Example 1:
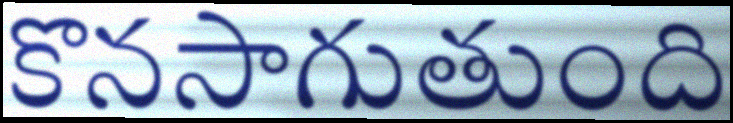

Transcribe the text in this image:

కొనసాగుతుంది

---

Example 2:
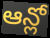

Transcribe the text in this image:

ఆన్లో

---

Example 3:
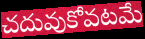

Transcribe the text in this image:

చదువుకోవటమే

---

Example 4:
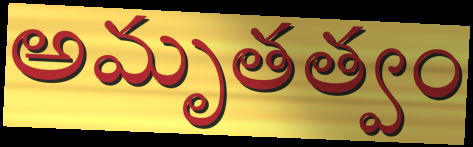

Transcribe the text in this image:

అమృతత్వం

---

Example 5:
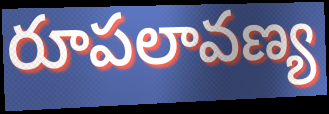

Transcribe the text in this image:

రూపలావణ్య